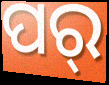
ପର୍